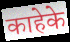
काहेके